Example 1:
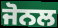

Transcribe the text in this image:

ਜੋਨਲ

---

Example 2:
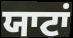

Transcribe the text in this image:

ਯਾਟਾਂ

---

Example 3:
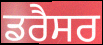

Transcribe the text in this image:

ਡਰੈਸਰ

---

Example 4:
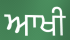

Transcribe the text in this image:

ਆਖੀ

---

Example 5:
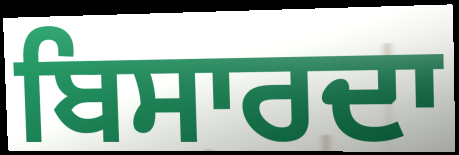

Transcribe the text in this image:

ਬਿਸਾਰਦਾ